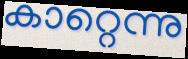
കാറ്റെന്നു